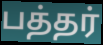
பத்தர்